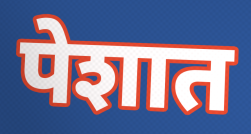
पेशात